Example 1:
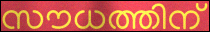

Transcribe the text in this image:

സൗധത്തിന്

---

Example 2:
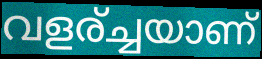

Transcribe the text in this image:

വളര്ച്ചയാണ്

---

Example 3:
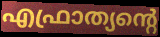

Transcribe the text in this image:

എഫ്രാത്യന്റെ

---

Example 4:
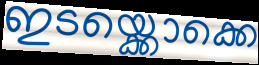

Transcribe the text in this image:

ഇടയ്ക്കൊക്കെ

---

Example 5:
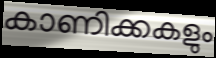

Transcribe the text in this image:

കാണിക്കകളും